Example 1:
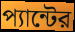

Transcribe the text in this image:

প্যান্টের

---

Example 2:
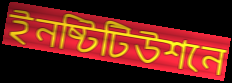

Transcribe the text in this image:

ইনষ্টিটিউশনে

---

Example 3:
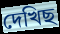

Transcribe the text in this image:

দেখিছ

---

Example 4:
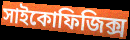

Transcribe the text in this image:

সাইকোফিজিক্স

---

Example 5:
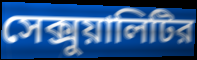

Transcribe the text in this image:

সেক্সুয়ালিটির